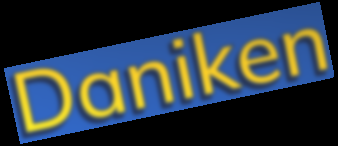
Daniken